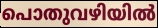
പൊതുവഴിയിൽ